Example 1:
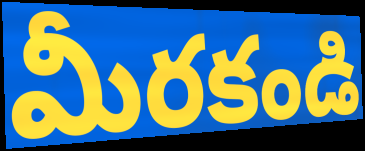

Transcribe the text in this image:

మీరకండి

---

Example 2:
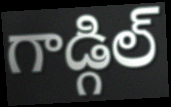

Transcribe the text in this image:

గాడ్గిల్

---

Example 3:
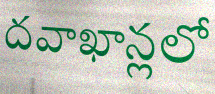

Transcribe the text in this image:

దవాఖాన్లలో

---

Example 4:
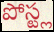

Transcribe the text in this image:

పోస్ట్ల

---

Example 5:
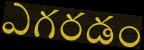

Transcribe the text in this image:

ఎగరడం